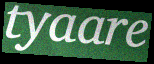
tyaare